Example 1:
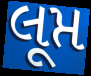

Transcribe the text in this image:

લૂપ્ત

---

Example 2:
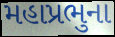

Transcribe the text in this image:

મહાપ્રભુના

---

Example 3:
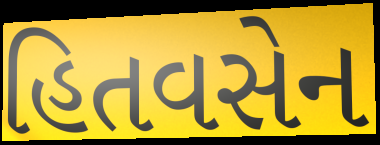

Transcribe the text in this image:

હિતવસેન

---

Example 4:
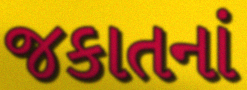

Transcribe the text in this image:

જકાતનાં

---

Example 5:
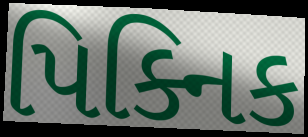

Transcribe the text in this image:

પિક્નિક